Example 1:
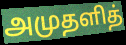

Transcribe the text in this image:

அமுதளித்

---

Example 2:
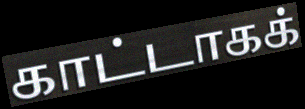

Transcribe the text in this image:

காட்டாகக்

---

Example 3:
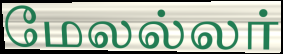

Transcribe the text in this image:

மேலல்லர்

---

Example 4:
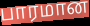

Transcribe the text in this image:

பாரமான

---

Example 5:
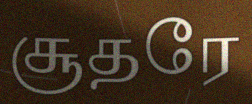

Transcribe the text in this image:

சூதரே